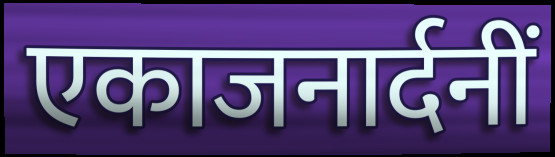
एकाजनार्दनीं